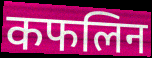
कफलिन